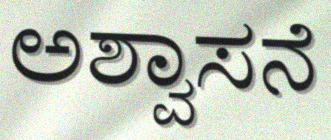
ಅಶ್ವಾಸನೆ